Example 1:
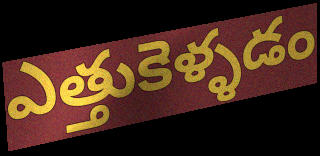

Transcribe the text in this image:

ఎత్తుకెళ్ళడం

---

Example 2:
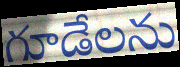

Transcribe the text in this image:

గూడేలను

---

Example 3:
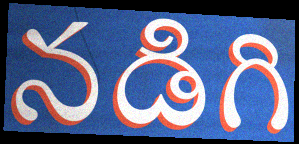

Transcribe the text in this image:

నడిగి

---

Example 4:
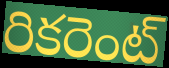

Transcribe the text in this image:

రికరెంట్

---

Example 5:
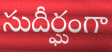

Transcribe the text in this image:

సుదీర్ఘంగా